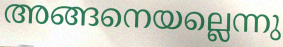
അങ്ങനെയല്ലെന്നു